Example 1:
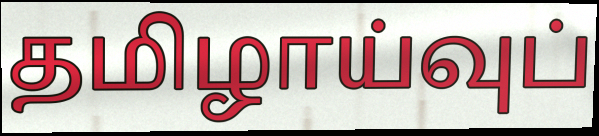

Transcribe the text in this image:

தமிழாய்வுப்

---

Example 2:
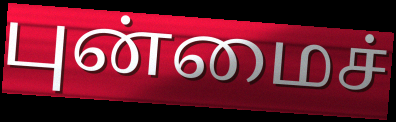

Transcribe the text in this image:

புன்மைச்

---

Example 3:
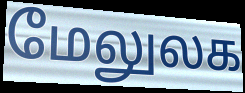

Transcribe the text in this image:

மேலுலக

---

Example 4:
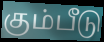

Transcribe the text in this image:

கும்பீடு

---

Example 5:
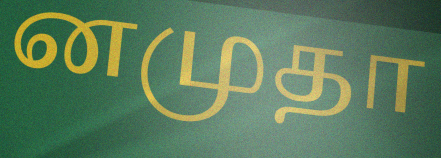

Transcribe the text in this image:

னமுதா